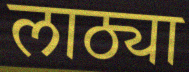
लाठ्या